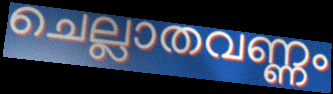
ചെല്ലാതവണ്ണം